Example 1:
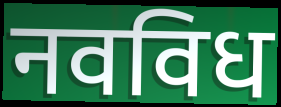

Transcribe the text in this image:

नवविध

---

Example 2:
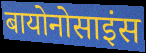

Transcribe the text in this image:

बायोनोसाइंस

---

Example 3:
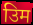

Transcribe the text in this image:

उिम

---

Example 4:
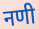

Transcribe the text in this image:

नणी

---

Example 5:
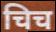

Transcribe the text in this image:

चिच